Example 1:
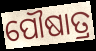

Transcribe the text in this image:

ପୌଷାତ୍ର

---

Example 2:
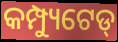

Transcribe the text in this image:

କମ୍ପ୍ୟୁଟେଡ୍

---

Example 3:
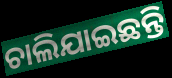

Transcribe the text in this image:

ଚାଲିଯାଇଛନ୍ତି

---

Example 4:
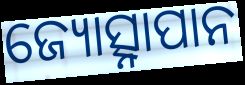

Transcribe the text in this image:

ଜ୍ୟୋତ୍ସ୍ନାପାନ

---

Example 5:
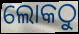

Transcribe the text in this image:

ଲୋକଠୁ